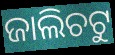
ଜାଲିଚଟୁ